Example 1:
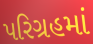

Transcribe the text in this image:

પરિગ્રહમાં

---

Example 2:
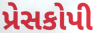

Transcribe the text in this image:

પ્રેસકોપી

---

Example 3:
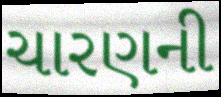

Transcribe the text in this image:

ચારણની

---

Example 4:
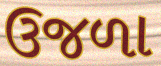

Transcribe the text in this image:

ઉજળા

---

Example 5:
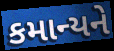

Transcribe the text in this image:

કમાન્યને